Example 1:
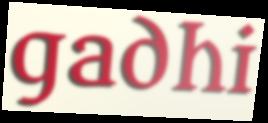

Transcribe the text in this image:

gadhi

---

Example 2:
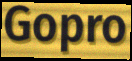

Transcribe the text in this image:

Gopro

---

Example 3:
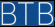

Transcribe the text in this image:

BTB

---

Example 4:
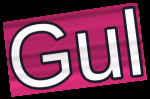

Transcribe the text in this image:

Gul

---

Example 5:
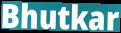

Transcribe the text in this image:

Bhutkar